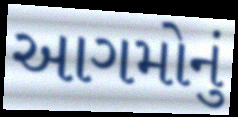
આગમોનું